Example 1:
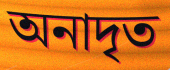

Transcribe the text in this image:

অনাদৃত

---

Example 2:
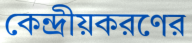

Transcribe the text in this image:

কেন্দ্রীয়করণের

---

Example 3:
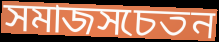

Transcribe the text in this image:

সমাজসচেতন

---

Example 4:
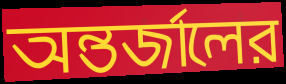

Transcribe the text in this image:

অন্তর্জালের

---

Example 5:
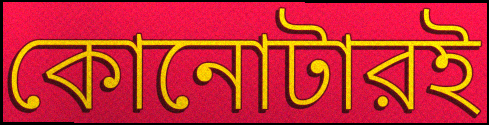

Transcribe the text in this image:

কোনোটারই